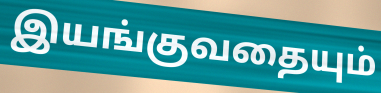
இயங்குவதையும்